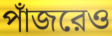
পাঁজরেও